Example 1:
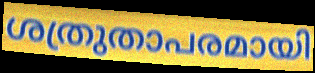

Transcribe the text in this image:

ശത്രുതാപരമായി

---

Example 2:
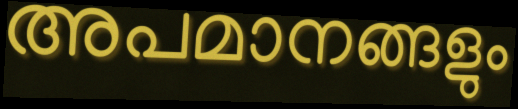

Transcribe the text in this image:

അപമാനങ്ങളും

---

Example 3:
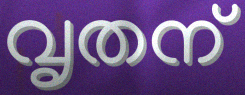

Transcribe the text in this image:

വൃതന്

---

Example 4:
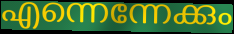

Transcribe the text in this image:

എന്നെന്നേക്കും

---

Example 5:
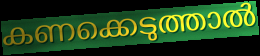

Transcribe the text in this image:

കണക്കെടുത്താൽ